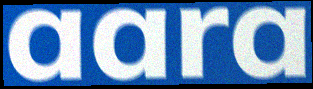
aara